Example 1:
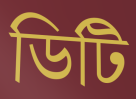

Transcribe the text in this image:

ডিটি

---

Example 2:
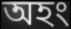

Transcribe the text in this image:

অহং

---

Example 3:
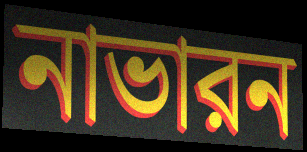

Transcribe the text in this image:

নাভারন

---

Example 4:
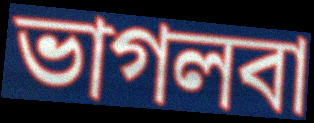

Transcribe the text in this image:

ভাগলবা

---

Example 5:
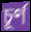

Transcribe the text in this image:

চূর্ণ